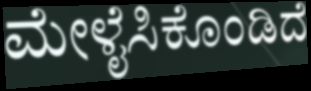
ಮೇಳೈಸಿಕೊಂಡಿದೆ